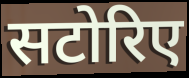
सटोरिए